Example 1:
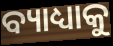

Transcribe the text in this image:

ବ୍ୟାଧ୍ୟାକୁ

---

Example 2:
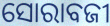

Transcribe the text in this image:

ସୋରାବଜୀ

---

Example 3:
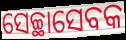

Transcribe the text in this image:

ସେଚ୍ଛାସେବକ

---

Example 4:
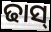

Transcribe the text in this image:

ଢାସ୍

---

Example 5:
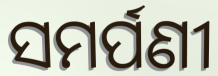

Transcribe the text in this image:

ସମର୍ପଣୀ